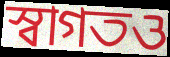
স্বাগতও